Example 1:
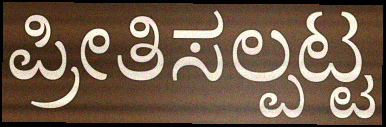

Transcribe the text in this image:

ಪ್ರೀತಿಸಲ್ಪಟ್ಟ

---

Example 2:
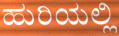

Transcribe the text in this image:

ಹುರಿಯಲ್ಲಿ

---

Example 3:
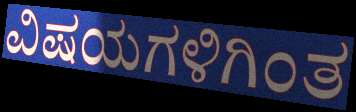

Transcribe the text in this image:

ವಿಷಯಗಳಿಗಿಂತ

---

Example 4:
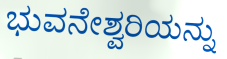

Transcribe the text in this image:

ಭುವನೇಶ್ವರಿಯನ್ನು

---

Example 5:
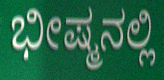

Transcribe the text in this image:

ಭೀಷ್ಮನಲ್ಲಿ